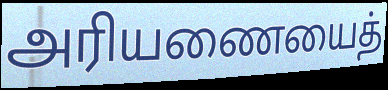
அரியணையைத்